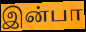
இன்பா